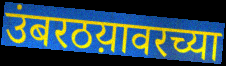
उंबरठय़ावरच्या